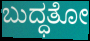
ಬುದ್ಧತೋ